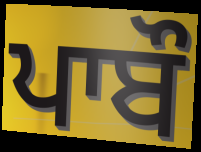
ਪਾਬੌ